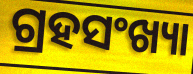
ଗ୍ରହସଂଖ୍ୟା